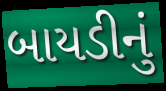
બાયડીનું